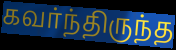
கவர்ந்திருந்த